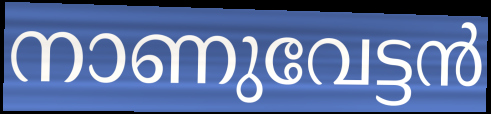
നാണുവേട്ടൻ